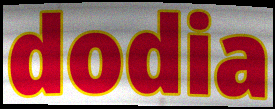
dodia